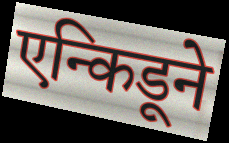
एन्किडूने